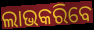
ଲାଭକରିବେ